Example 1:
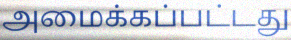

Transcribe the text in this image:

அமைக்கப்பட்டது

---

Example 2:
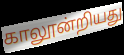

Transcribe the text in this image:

காலூன்றியது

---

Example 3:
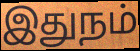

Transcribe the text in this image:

இதுநம்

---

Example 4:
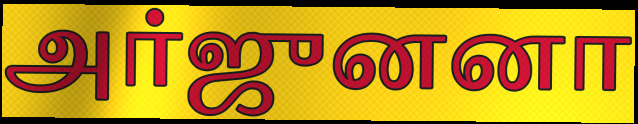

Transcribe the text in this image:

அர்ஜுனனா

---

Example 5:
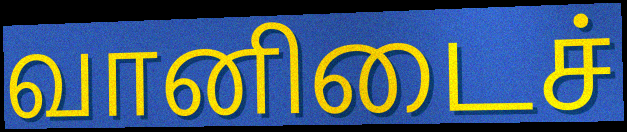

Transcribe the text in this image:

வானிடைச்